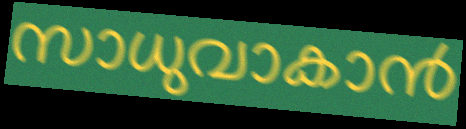
സാധുവാകാൻ